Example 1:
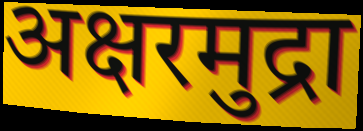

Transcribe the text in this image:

अक्षरमुद्रा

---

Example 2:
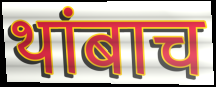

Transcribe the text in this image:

थांबाच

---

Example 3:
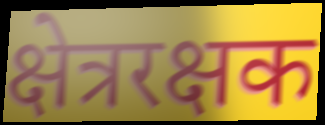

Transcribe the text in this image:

क्षेत्ररक्षक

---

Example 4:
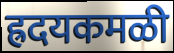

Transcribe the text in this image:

ह्रदयकमळी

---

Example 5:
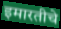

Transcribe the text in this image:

इमारतीचे